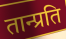
तान्प्रति